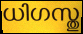
ധിഗസ്തു